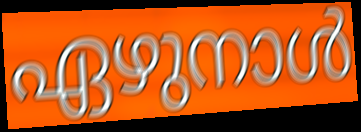
ഏഴുനാൾ